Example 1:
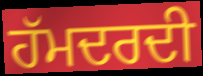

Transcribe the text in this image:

ਹੱਮਦਰਦੀ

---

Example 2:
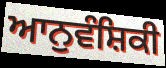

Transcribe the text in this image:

ਆਨੁਵੰਸ਼ਿਕੀ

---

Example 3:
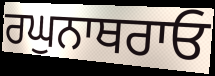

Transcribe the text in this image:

ਰਘੁਨਾਥਰਾਓ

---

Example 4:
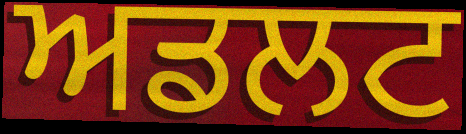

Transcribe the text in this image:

ਅਡਲਟ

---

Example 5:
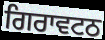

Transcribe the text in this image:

ਗਿਰਾਵਟਠ